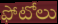
ఫోటోలు